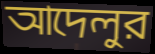
আদেলুর